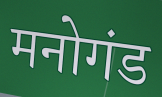
मनोगंड